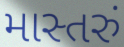
માસ્તરું